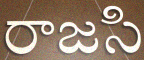
రాజసి